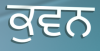
ਕੁਵਨ